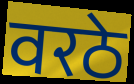
वरठे